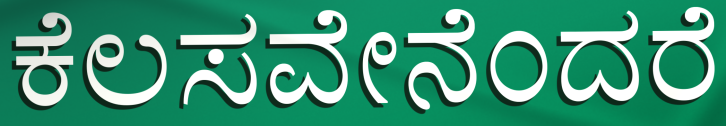
ಕೆಲಸವೇನೆಂದರೆ